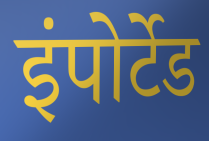
इंपोर्टेड